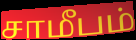
சாமீபம்